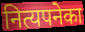
नित्यपनेका